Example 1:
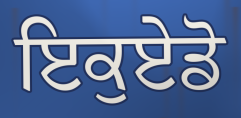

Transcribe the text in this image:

ਇਕੁਏਡੋ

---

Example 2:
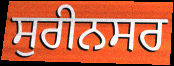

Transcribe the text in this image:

ਸੁਰੀਨਸਰ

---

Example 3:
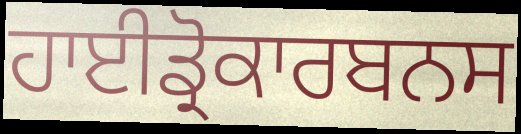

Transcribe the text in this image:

ਹਾਈਡ੍ਰੋਕਾਰਬਨਸ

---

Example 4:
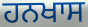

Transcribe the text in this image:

ਹਨਖਾਸ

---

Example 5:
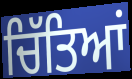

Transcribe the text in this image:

ਚਿੱਤਿਆਂ